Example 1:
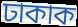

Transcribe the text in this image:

ঢাকাক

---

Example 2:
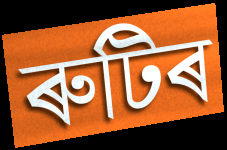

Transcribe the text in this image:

ৰুটিৰ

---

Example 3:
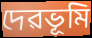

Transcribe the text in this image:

দেৱভূমি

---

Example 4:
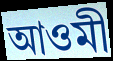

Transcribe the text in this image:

আওমী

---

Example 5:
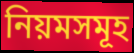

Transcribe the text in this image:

নিয়মসমূহ